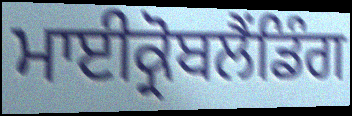
ਮਾਈਕ੍ਰੋਬਲੈਂਡਿੰਗ